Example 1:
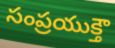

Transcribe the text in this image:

సంప్రయుక్తౌ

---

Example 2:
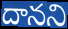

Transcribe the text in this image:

దానని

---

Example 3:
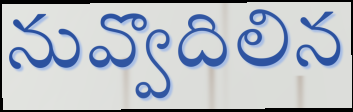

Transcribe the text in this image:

నువ్వొదిలిన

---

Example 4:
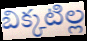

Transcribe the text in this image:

బిక్కటిల్ల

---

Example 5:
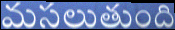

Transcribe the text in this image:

మసలుతుంది